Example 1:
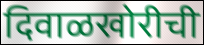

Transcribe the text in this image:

दिवाळखोरीची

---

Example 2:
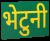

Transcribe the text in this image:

भेटुनी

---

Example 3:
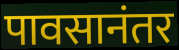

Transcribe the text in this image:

पावसानंतर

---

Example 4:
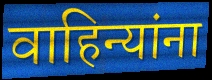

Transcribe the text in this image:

वाहिन्यांना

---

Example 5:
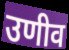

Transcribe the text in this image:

उणीव